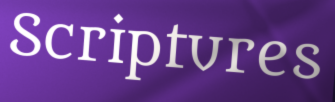
Scriptures